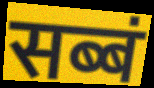
सब्बं